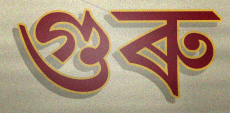
গুৰু